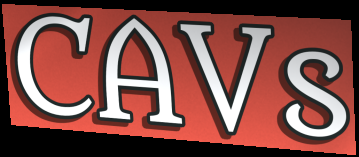
CAVs